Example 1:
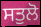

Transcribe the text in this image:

ਸਤੁਲੋ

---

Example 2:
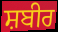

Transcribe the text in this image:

ਸ਼ਬੀਰ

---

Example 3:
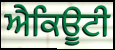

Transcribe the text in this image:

ਐਕਿਊਟੀ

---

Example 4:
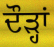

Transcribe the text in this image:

ਦੌੜ੍ਹਾਂ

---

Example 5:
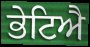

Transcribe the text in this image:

ਭੇਟਿਐ